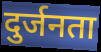
दुर्जनता